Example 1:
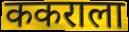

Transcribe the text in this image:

ककराला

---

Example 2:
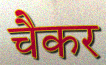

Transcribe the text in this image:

चैकर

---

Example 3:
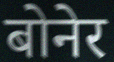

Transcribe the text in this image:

बोनेर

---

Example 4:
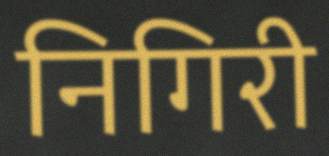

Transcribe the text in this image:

निगिरी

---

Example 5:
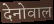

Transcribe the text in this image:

देनोवाल